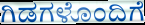
ಗಿಡಗಳೊಂದಿಗೆ